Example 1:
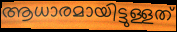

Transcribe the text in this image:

ആധാരമായിട്ടുള്ളത്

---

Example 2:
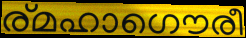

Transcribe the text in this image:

ര്മഹാഗൌരീ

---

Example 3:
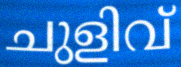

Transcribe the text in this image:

ചുളിവ്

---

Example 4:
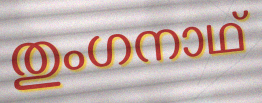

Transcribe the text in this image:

തുംഗനാഥ്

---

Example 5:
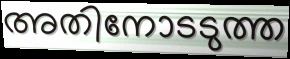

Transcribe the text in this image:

അതിനോടടുത്ത